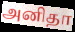
அனிதா